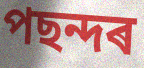
পছন্দৰ